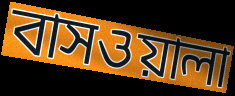
বাসওয়ালা